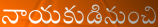
నాయకుడినుంచి